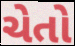
ચેતો